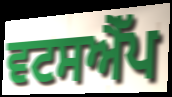
ਵਟਸਐੱਪ